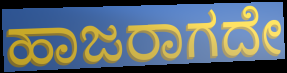
ಹಾಜರಾಗದೇ